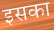
इसका